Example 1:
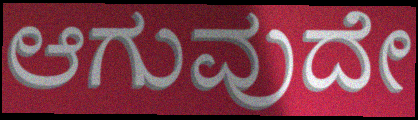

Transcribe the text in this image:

ಆಗುವುದೇ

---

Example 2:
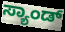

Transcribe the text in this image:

ಸ್ಯಾಂಡ್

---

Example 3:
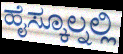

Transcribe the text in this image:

ಹೈಸ್ಕೂಲ್ನಲ್ಲಿ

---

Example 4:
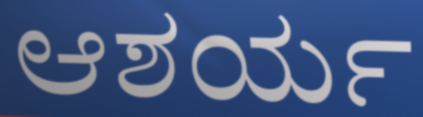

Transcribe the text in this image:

ಆಶರ್ಯ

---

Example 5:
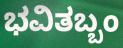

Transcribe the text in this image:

ಭವಿತಬ್ಬಂ